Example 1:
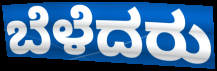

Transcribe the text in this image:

ಬೆಳೆದರು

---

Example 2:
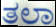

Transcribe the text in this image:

ತಲಾ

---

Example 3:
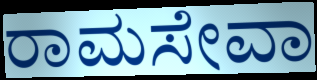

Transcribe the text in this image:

ರಾಮಸೇವಾ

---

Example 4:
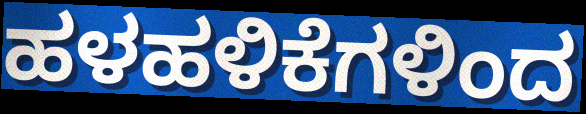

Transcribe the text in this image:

ಹಳಹಳಿಕೆಗಳಿಂದ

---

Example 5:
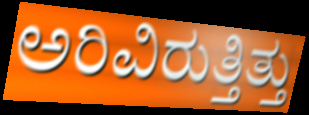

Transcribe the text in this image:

ಅರಿವಿರುತ್ತಿತ್ತು